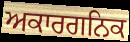
ਅਕਾਰਗਨਿਕ